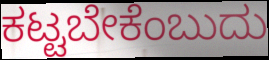
ಕಟ್ಟಬೇಕೆಂಬುದು